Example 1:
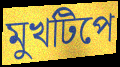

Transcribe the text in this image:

মুখটিপে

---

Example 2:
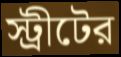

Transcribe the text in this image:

স্ট্রীটের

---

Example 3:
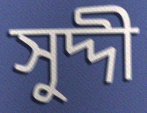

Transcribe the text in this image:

সুদ্দী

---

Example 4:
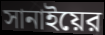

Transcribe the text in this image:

সানাইয়ের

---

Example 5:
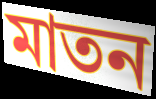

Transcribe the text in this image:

মাতন